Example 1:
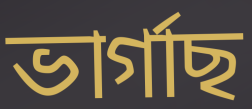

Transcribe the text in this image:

ভাৰ্গাছ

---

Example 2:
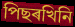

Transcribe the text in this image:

পিছৰখিনি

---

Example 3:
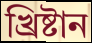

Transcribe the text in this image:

খ্ৰিষ্টান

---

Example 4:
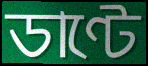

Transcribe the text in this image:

ডাণ্টে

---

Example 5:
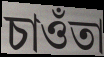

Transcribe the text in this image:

চাওঁতা